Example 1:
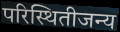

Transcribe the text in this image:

परिस्थितीजन्य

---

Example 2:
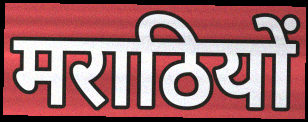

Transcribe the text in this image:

मराठियों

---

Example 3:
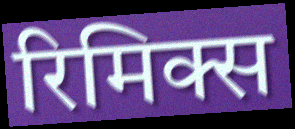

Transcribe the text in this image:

रिमिक्स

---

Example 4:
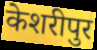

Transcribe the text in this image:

केशरीपुर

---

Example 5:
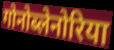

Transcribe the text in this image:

गोनोब्लेनोरिया